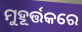
ମୁହୂର୍ତ୍ତକରେ